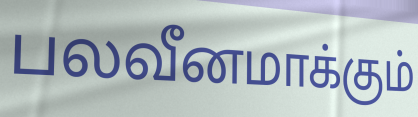
பலவீனமாக்கும்